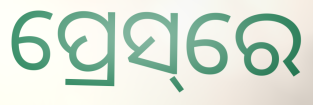
ପ୍ରେସ୍‌ରେ